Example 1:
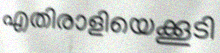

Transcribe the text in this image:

എതിരാളിയെക്കൂടി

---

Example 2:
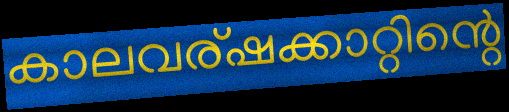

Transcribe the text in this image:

കാലവര്ഷക്കാറ്റിന്റെ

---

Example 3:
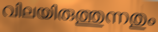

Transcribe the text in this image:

വിലയിരുത്തുന്നതും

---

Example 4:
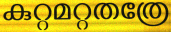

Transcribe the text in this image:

കുറ്റമറ്റതത്രേ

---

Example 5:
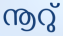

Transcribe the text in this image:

നൂറു്